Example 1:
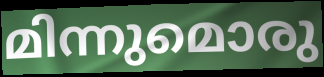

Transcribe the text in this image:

മിന്നുമൊരു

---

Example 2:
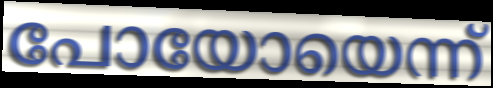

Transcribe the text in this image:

പോയോയെന്ന്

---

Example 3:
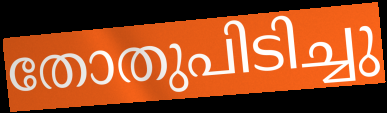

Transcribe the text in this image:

തോതുപിടിച്ചു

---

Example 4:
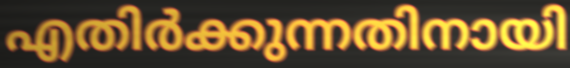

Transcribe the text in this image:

എതിർക്കുന്നതിനായി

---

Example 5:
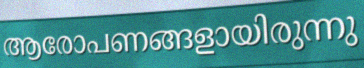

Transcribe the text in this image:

ആരോപണങ്ങളായിരുന്നു